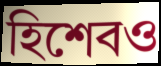
হিশেবও